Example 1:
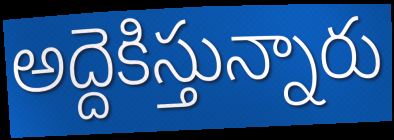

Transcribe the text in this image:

అద్దెకిస్తున్నారు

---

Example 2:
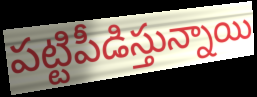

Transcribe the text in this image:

పట్టిపీడిస్తున్నాయి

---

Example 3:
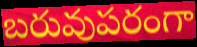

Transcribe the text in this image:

బరువుపరంగా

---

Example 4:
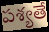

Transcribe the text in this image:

పశ్యతే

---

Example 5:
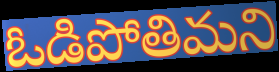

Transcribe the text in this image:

ఓడిపోతిమని